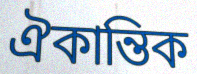
ঐকান্তিক